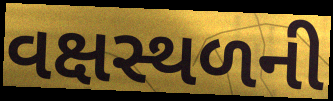
વક્ષસ્થળની